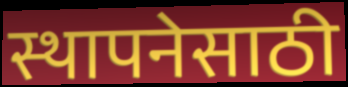
स्थापनेसाठी